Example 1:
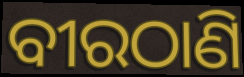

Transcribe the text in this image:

ବୀରଠାଣି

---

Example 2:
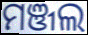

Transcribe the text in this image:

ମଞ୍ଜଲ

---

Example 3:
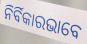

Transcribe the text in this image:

ନିର୍ବିକାରଭାବେ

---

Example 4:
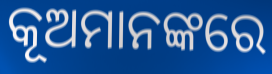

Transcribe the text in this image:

କୂଅମାନଙ୍କରେ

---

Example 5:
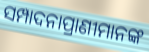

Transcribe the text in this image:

ସମ୍ପାଦନାପ୍ରାଣୀମାନଙ୍କ